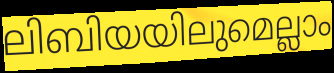
ലിബിയയിലുമെല്ലാം